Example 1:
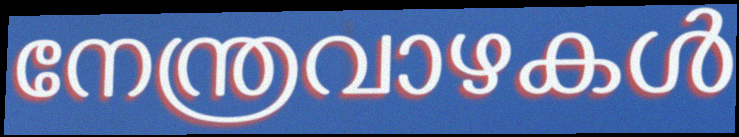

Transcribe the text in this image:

നേന്ത്രവാഴകൾ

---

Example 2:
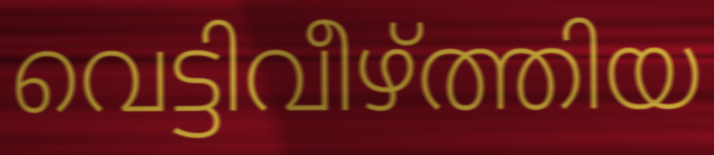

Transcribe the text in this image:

വെട്ടിവീഴ്ത്തിയ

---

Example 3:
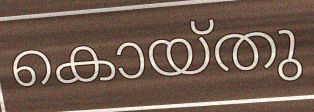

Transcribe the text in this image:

കൊയ്തു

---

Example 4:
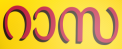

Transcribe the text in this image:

റാസ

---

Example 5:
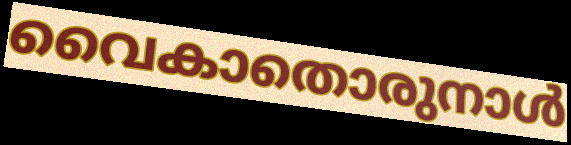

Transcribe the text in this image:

വൈകാതൊരുനാൾ